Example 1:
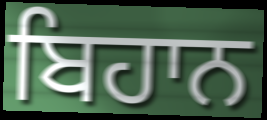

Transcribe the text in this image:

ਬਿਹਾਨ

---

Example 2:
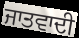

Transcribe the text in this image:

ਜਾਤਵਾਦੀ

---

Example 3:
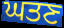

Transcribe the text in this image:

ਘਤਣ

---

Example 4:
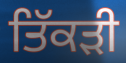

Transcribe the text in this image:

ਤਿੱਕੜੀ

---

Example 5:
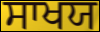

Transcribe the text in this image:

ਸਾਖਯ